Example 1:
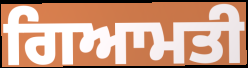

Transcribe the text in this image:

ਗਿਆਮਤੀ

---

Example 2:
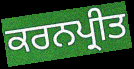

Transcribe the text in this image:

ਕਰਨਪ੍ਰੀਤ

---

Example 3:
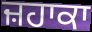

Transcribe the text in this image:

ਜ਼ਹਾਕਾ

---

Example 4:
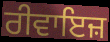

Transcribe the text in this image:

ਰੀਵਾਇਜ਼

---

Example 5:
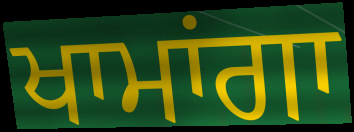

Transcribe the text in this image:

ਖਾਮਾਂਗਾ